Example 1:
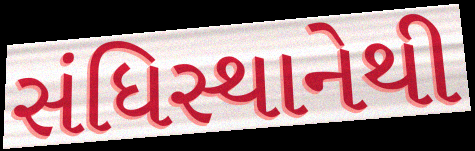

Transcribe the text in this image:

સંધિસ્થાનેથી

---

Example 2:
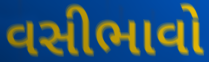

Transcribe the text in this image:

વસીભાવો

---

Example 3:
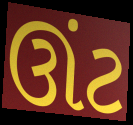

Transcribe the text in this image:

ઊંટ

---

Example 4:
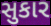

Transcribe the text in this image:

સુકાર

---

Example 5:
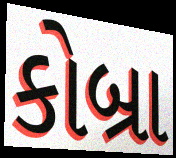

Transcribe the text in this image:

કોબ્રા